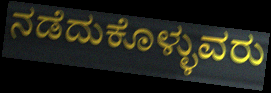
ನಡೆದುಕೊಳ್ಳುವರು